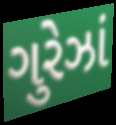
ગુરેઝાં